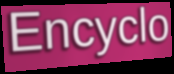
Encyclo